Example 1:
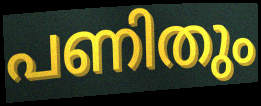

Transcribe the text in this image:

പണിതും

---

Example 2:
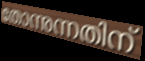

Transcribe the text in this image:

തോന്നുന്നതിന്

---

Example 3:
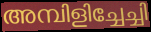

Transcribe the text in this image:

അമ്പിളിച്ചേച്ചി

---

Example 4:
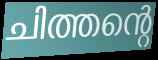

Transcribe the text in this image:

ചിത്തന്റെ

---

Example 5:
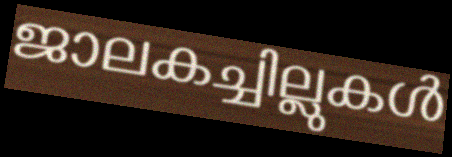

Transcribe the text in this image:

ജാലകച്ചില്ലുകൾ